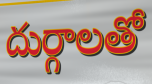
దుర్గాలతో